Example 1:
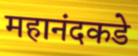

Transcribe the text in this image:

महानंदकडे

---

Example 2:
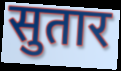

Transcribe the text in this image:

सुतार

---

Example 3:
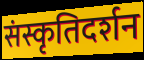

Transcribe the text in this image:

संस्कृतिदर्शन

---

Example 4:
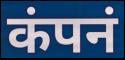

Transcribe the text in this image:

कंपनं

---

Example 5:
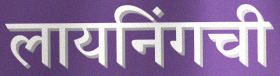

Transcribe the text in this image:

लायनिंगची